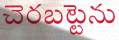
చెరబట్టెను